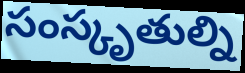
సంస్కృతుల్ని